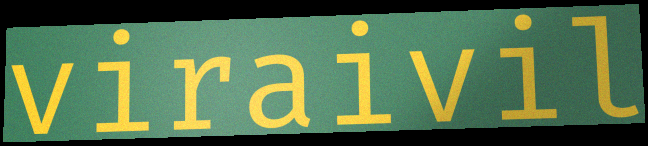
viraivil